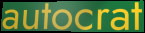
autocrat